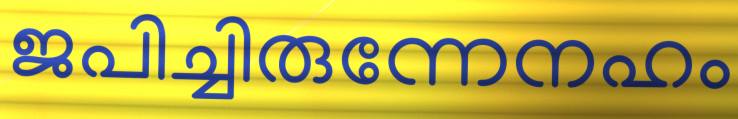
ജപിച്ചിരുന്നേനഹം